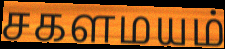
சகளமயம்